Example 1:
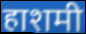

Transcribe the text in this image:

हाशमी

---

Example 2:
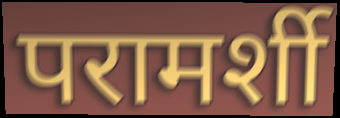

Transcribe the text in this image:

परामर्शी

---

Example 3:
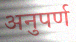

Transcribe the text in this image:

अनुपर्ण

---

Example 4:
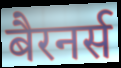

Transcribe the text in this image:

बैरनर्स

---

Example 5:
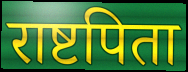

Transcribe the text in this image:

राष्टपिता